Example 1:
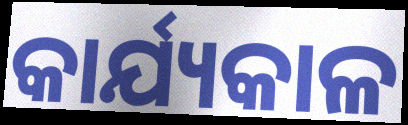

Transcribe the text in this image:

କାର୍ଯ୍ୟକାଳ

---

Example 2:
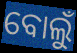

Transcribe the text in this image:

ବୋଲୁଁ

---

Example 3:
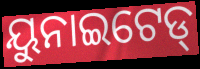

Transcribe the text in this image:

ୟୁନାଇଟେଡ୍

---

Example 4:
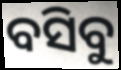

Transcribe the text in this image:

ବସିବୁ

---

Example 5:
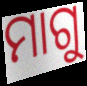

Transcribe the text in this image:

ମାଗୁ